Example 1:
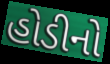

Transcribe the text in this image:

હોડીનો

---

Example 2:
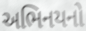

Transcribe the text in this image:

અભિનયનો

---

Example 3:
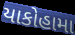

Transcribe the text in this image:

યાકોહામા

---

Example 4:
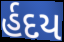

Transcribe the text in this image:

ર્હદય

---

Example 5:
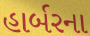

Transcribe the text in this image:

હાર્બરના